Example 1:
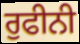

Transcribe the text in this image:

ਰੁਫੀਨੀ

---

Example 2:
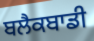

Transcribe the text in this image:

ਬਲੈਕਬਾਡੀ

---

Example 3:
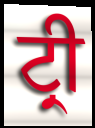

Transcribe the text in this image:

ਟ੍ਰੀ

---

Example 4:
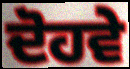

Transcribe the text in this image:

ਦੋਹਵੇ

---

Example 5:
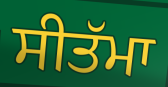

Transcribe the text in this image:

ਸੀਤੱਮਾ